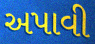
અપાવી